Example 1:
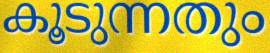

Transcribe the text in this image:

കൂടുന്നതും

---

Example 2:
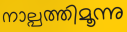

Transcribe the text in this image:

നാല്പത്തിമൂന്നു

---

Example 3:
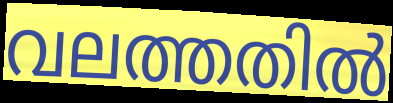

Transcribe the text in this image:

വലത്തതിൽ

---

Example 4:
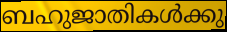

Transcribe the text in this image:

ബഹുജാതികൾക്കു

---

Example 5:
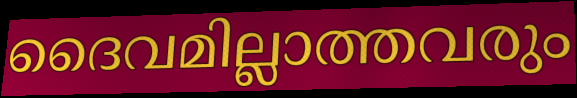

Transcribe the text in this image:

ദൈവമില്ലാത്തവരും